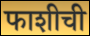
फाशीची